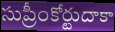
సుప్రీంకోర్టుదాకా